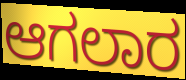
ಆಗಲಾರ